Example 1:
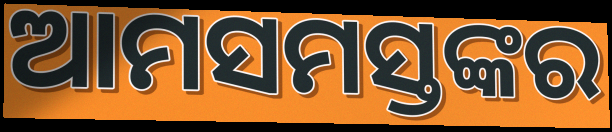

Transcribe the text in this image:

ଆମସମସ୍ତଙ୍କର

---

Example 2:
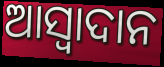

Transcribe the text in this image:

ଆସ୍ୱାଦାନ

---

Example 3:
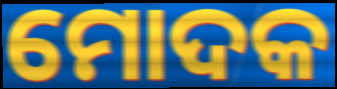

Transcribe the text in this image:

ମୋଦକ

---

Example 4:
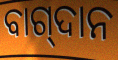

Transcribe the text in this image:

ବାଗ୍‍ଦାନ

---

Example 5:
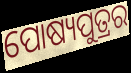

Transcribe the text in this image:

ପୋଷ୍ୟପୁତ୍ରର